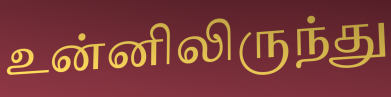
உன்னிலிருந்து